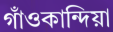
গাঁওকান্দিয়া